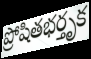
ప్రోషితభర్తృక